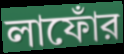
লাফোঁর